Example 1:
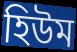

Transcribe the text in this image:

হিউম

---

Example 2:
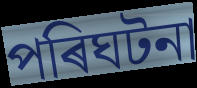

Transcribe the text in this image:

পৰিঘটনা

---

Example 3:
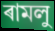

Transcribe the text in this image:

ৰামলু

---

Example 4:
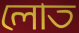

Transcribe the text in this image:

লোত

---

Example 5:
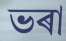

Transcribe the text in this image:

ভৰা